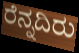
ರೆನ್ನದಿರು